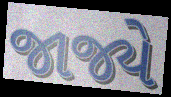
જાજ્યે